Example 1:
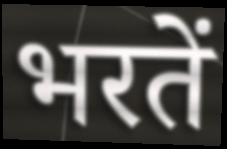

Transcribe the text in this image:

भरतें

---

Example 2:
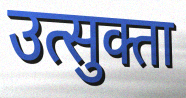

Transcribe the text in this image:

उत्सुक्ता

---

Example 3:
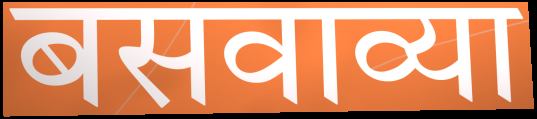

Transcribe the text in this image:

बसवाव्या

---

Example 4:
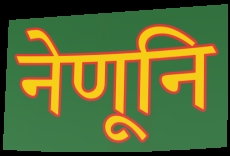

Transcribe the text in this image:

नेणूनि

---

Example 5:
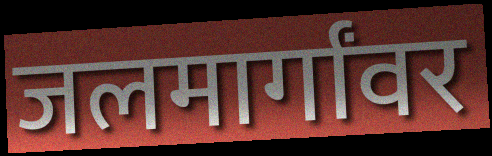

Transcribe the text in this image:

जलमार्गांवर